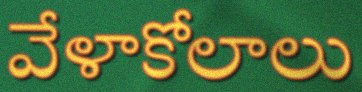
వేళాకోలాలు